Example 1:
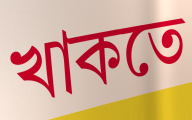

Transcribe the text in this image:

খাকতে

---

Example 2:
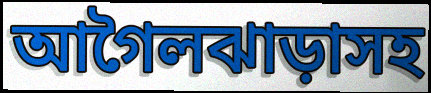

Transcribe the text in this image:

আগৈলঝাড়াসহ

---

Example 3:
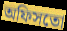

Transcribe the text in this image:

অফিসতো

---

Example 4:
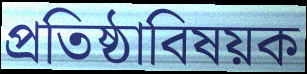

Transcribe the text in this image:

প্রতিষ্ঠাবিষয়ক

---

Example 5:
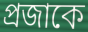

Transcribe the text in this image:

প্রজাকে